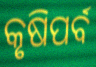
କୃଷିପର୍ବ